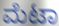
ಮೆಟಾ